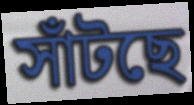
সাঁটছে